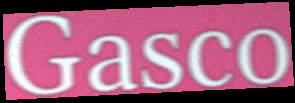
Gasco